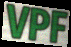
VPF